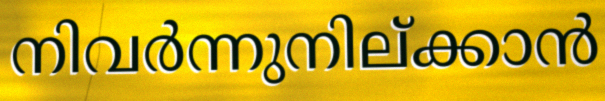
നിവർന്നുനില്ക്കാൻ